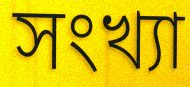
সংখ্যা